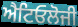
ਐਟਿਓਲੋਜੀ